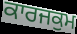
ਕਾਰਜਕੁਮ